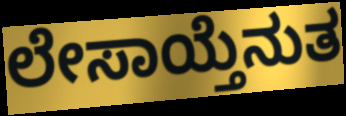
ಲೇಸಾಯ್ತೆನುತ